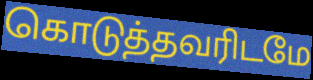
கொடுத்தவரிடமே